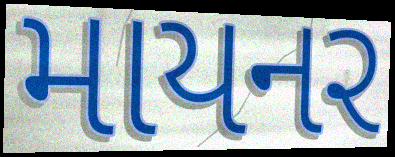
માયનર